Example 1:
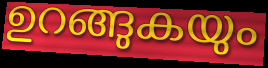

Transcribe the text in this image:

ഉറങ്ങുകയും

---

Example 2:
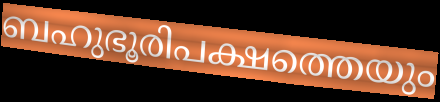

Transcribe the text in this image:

ബഹുഭൂരിപക്ഷത്തെയും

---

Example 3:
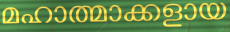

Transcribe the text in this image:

മഹാത്മാക്കളായ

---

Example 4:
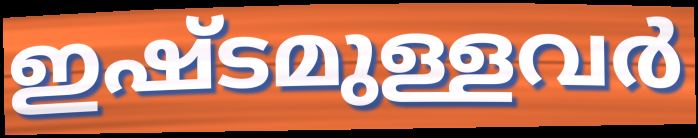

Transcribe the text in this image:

ഇഷ്ടമുള്ളവർ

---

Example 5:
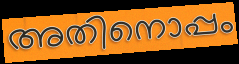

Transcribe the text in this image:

അതിനൊപ്പം